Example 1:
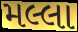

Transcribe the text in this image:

મલ્લા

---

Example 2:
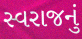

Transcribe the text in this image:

સ્વરાજનું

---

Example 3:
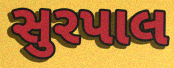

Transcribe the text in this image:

સુરપાલ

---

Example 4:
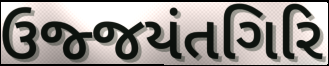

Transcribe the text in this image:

ઉજ્જયંતગિરિ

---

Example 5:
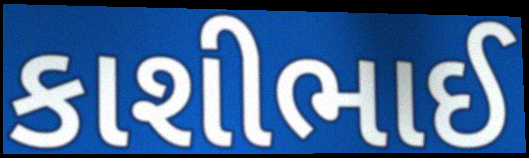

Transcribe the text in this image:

કાશીભાઈ